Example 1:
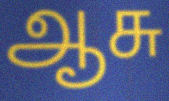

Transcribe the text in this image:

ஆசு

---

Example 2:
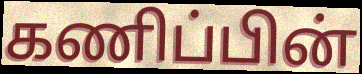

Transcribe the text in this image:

கணிப்பின்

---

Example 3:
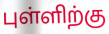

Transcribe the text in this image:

புள்ளிற்கு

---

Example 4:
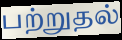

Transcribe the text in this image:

பற்றுதல்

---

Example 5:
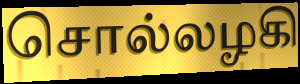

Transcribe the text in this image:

சொல்லழகி